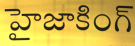
హైజాకింగ్